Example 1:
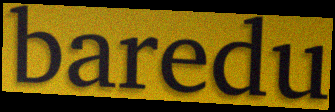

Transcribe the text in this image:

baredu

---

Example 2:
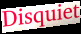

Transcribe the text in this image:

Disquiet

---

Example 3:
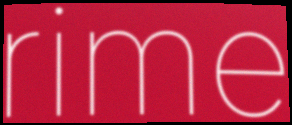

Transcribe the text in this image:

rime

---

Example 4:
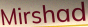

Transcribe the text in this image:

Mirshad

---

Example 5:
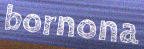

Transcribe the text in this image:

bornona